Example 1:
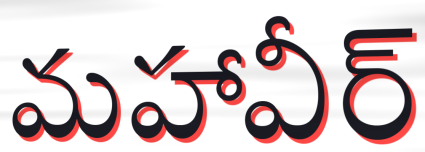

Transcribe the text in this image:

మహావీర్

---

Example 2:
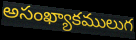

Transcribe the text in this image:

అసంఖ్యాకములుగ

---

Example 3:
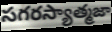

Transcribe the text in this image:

సగరస్యాత్మజా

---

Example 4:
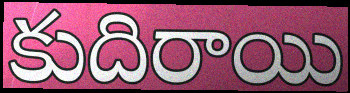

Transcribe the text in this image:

కుదిరాయి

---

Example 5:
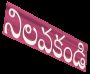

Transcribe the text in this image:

నిలవకండి